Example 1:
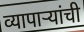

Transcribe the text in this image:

व्यापाऱ्यांची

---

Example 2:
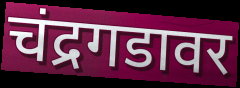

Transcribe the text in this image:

चंद्रगडावर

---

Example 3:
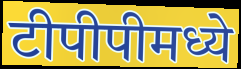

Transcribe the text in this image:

टीपीपीमध्ये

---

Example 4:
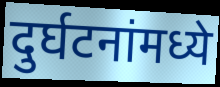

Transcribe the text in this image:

दुर्घटनांमध्ये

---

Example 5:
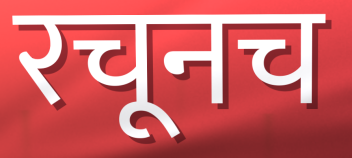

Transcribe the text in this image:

रचूनच